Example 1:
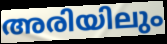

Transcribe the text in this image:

അരിയിലും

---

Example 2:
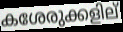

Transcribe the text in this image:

കശേരുക്കളില്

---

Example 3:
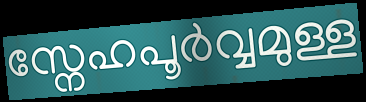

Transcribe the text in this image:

സ്നേഹപൂർവ്വമുള്ള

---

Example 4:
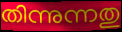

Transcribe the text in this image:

തിന്നുന്നതു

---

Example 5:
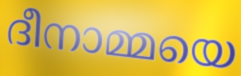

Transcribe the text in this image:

ദീനാമ്മയെ